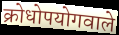
क्रोधोपयोगवाले